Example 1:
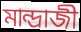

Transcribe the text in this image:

মান্দ্রাজী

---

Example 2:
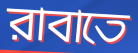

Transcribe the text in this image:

রাবাতে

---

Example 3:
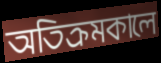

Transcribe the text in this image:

অতিক্রমকালে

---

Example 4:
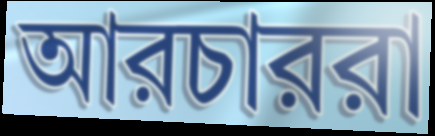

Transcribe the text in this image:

আরচাররা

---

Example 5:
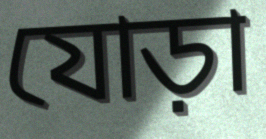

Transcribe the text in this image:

যোড়া